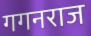
गगनराज